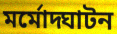
মর্মোদ্ঘাটন